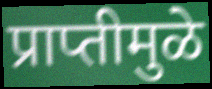
प्राप्तीमुळे